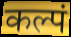
कल्पं